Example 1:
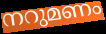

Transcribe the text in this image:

നറുമണം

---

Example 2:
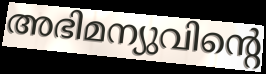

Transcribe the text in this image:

അഭിമന്യുവിന്റെ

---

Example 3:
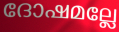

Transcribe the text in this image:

ദോഷമല്ലേ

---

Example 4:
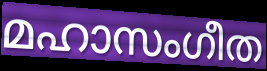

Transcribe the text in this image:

മഹാസംഗീത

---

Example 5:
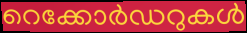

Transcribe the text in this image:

റെക്കോർഡറുകൾ